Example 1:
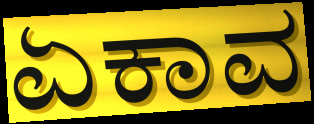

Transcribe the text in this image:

ಏಕಾವ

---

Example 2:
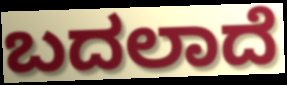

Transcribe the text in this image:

ಬದಲಾದೆ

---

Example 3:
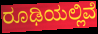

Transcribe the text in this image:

ರೂಢಿಯಲ್ಲಿವೆ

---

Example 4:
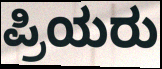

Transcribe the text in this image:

ಪ್ರಿಯರು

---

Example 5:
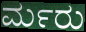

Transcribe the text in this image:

ರ್ಮರು